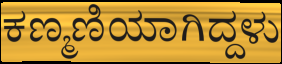
ಕಣ್ಮಣಿಯಾಗಿದ್ದಳು